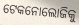
ଟେକନୋଲୋଜିକୁ